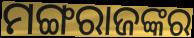
ମଙ୍ଗରାଜଙ୍କର